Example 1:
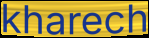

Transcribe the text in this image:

kharech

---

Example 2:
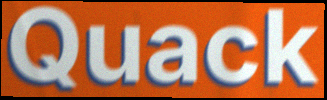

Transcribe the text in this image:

Quack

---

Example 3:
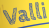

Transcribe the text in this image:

Valli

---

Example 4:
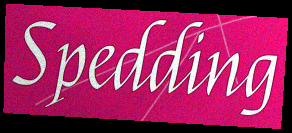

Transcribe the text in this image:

Spedding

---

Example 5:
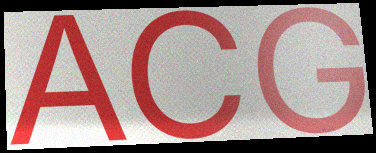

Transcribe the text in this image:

ACG